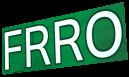
FRRO